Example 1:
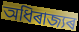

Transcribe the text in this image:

অধিৰাজ্যৰ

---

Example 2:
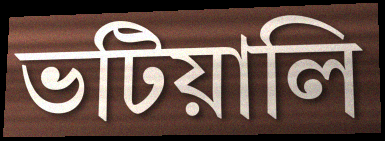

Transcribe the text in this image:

ভটিয়ালি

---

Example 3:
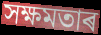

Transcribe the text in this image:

সক্ষমতাৰ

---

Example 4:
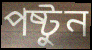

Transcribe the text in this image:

পষ্টুন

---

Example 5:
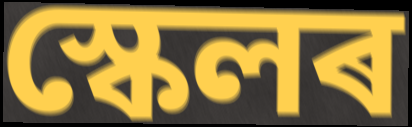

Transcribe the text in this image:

স্কেলৰ